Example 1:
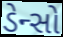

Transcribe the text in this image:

ડેન્સો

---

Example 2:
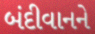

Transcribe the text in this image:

બંદીવાનને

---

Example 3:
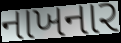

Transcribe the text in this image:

નાખનાર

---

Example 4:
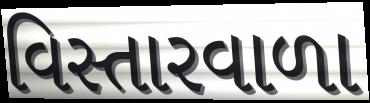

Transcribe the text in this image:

વિસ્તારવાળા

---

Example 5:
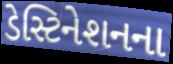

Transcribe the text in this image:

ડેસ્ટિનેશનના